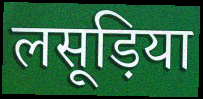
लसूड़िया